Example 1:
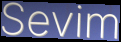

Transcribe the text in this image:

Sevim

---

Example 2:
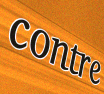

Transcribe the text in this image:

contre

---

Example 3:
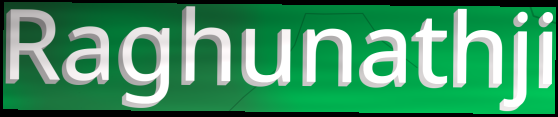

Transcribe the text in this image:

Raghunathji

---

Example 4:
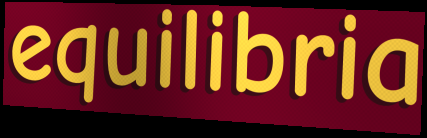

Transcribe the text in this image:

equilibria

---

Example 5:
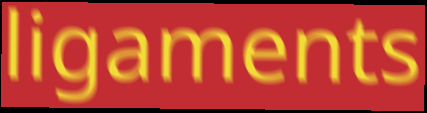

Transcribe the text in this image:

ligaments